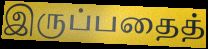
இருப்பதைத்